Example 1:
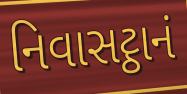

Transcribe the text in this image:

નિવાસટ્ઠાનં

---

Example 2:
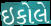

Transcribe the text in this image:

ઇકોલે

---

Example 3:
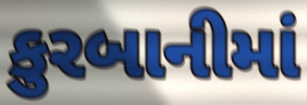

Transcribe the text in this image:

કુરબાનીમાં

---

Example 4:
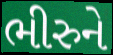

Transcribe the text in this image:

ભીરુને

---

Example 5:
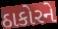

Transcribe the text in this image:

ઠાકોરને